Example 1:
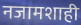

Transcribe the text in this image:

नजामशाही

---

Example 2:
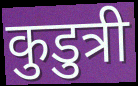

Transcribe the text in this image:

कुडुत्री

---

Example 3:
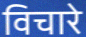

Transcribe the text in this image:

विचारे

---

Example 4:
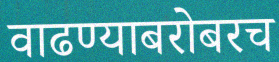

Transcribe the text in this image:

वाढण्याबरोबरच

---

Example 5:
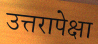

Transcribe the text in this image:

उत्तरापेक्षा